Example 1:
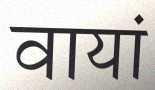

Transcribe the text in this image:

वायां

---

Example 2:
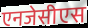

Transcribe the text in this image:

एनजेसीएस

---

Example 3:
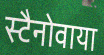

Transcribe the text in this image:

स्टैनोवाया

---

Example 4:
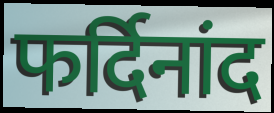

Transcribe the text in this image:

फर्दिनांद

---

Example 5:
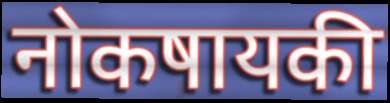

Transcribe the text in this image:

नोकषायकी